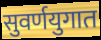
सुवर्णयुगात